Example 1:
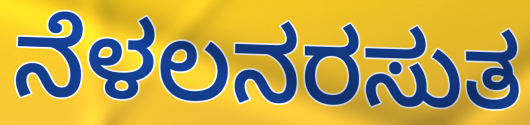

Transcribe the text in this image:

ನೆಳಲನರಸುತ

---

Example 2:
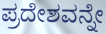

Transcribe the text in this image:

ಪ್ರದೇಶವನ್ನೇ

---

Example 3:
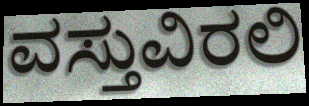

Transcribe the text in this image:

ವಸ್ತುವಿರಲಿ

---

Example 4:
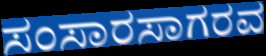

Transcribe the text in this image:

ಸಂಸಾರಸಾಗರವ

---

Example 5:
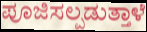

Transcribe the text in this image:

ಪೂಜಿಸಲ್ಪಡುತ್ತಾಳೆ